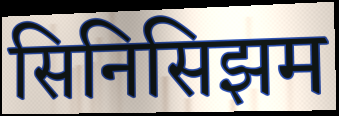
सिनिसिझम